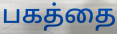
பகத்தை